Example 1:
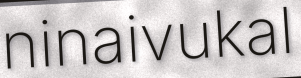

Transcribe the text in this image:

ninaivukal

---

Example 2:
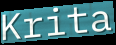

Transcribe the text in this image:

Krita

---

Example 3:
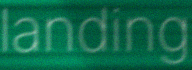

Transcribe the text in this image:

landing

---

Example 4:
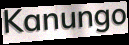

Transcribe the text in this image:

Kanungo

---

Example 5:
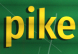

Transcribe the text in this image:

pike